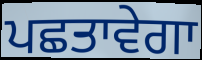
ਪਛਤਾਵੇਗਾ